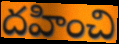
దహించి